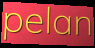
pelan